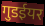
गुडईयर